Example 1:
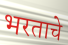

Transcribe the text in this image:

भरताचे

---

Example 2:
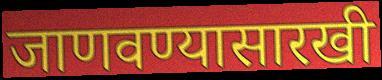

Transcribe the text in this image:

जाणवण्यासारखी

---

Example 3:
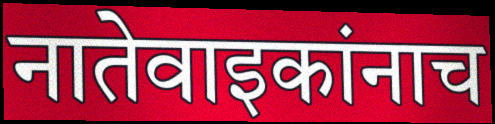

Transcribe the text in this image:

नातेवाइकांनाच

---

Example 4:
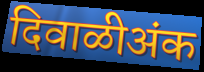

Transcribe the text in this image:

दिवाळीअंक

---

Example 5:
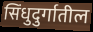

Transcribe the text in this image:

सिंधुदुर्गातील